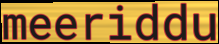
meeriddu